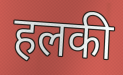
हलकी